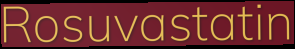
Rosuvastatin